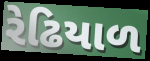
રેઢિયાળ